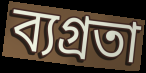
ব্যগ্রতা